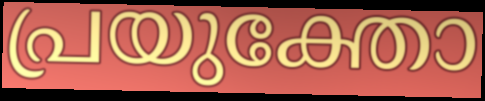
പ്രയുക്തോ